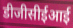
डीजीसीईआई